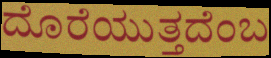
ದೊರೆಯುತ್ತದೆಂಬ